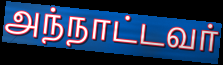
அந்நாட்டவர்